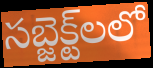
సబ్జెక్ట్‌లలో